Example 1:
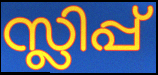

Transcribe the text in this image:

സ്ലിപ്പ്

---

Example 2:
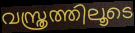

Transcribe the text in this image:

വസ്ത്രത്തിലൂടെ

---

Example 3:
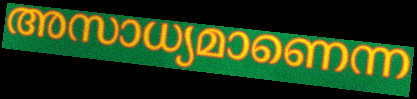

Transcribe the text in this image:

അസാധ്യമാണെന്ന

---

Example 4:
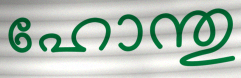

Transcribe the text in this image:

ഹോന്തു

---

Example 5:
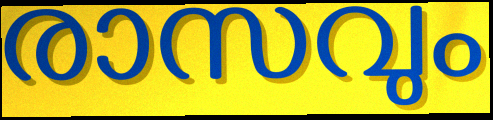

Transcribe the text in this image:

രാസവും